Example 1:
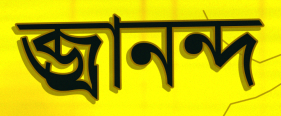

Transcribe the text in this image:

ব্জ্রানন্দ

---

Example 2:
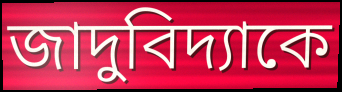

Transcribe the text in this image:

জাদুবিদ্যাকে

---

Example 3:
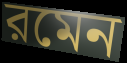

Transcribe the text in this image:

রমেন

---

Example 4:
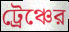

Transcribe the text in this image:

ট্রেঞ্চের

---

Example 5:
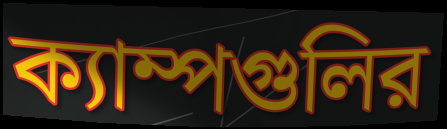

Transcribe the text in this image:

ক্যাম্পগুলির